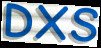
DXS